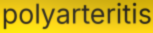
polyarteritis